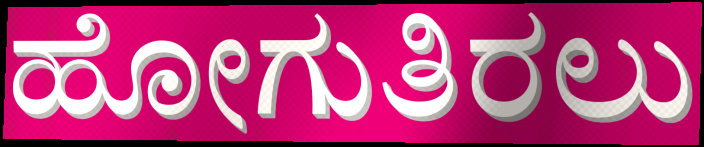
ಹೋಗುತಿರಲು